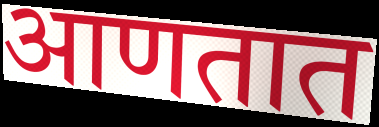
आणतात